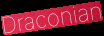
Draconian